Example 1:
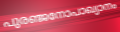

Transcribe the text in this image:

പുരഞ്ജനോപാഖ്യാനം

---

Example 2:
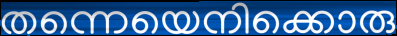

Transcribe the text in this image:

തന്നെയെനിക്കൊരു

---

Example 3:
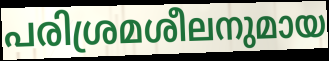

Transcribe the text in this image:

പരിശ്രമശീലനുമായ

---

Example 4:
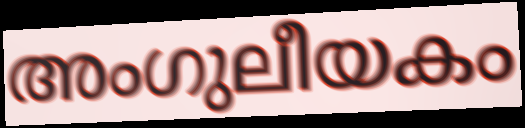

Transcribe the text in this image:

അംഗുലീയകം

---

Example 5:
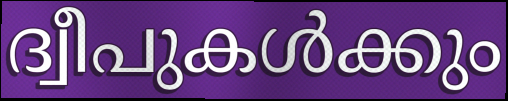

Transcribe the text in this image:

ദ്വീപുകൾക്കും